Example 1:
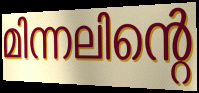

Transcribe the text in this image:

മിന്നലിന്റെ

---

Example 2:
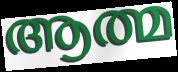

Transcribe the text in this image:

ആത്മ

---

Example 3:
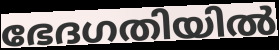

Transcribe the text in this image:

ഭേദഗതിയിൽ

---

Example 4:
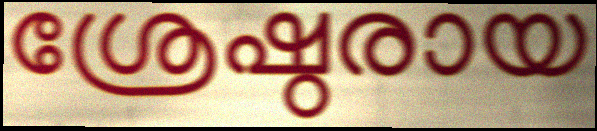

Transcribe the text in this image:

ശ്രേഷ്ഠരായ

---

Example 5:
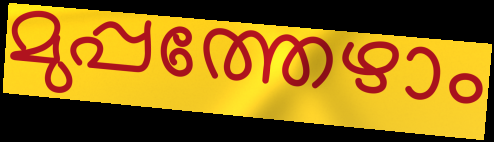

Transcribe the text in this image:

മുപ്പത്തേഴാം